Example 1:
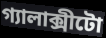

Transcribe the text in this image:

গ্যালাক্সীটো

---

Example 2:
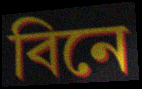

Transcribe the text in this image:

বিনে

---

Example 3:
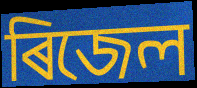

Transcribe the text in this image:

ৰিজেল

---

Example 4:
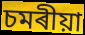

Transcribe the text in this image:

চমৰীয়া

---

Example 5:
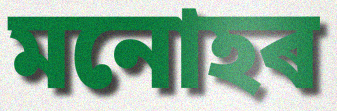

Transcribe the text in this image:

মনোহৰ